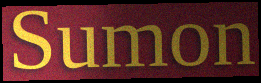
Sumon